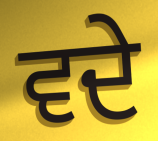
ਵਦੇ